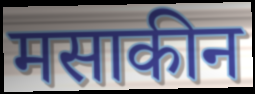
मसाकीन